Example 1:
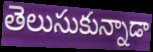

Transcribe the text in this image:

తెలుసుకున్నాడా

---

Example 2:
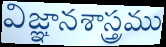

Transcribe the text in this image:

విజ్ఞానశాస్త్రము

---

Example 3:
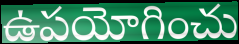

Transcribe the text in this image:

ఉపయోగించు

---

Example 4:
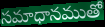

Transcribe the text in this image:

సమాధానముతో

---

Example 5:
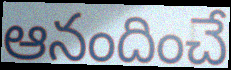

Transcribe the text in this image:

ఆనందించే